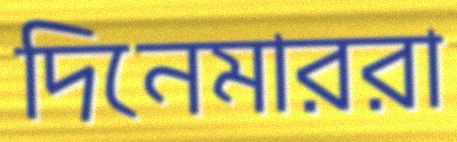
দিনেমাররা